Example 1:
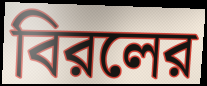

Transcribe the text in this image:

বিরলের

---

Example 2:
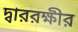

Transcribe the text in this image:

দ্বাররক্ষীর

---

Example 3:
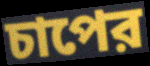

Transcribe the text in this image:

চাপের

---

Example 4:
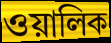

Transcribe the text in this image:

ওয়ালিক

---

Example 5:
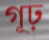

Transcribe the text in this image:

গূঢ়